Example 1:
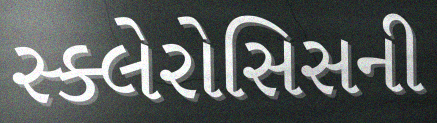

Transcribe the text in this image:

સ્ક્લેરોસિસની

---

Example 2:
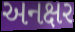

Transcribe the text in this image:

અનક્ષર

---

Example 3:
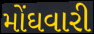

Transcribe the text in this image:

મોંઘવારી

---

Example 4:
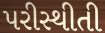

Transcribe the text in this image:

પરીસ્થીતી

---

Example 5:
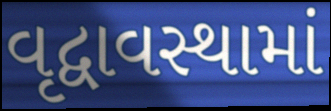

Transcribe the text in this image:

વૃદ્વાવસ્થામાં